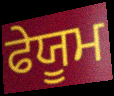
ਫੇਯੂਮ